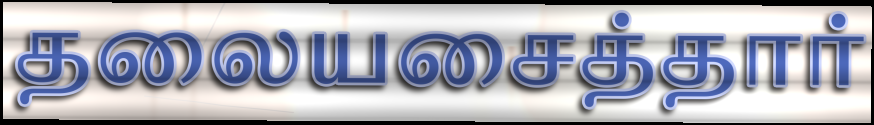
தலையசைத்தார்